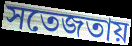
সতেজতায়